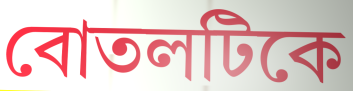
বোতলটিকে